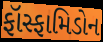
ફૉસ્ફામિડોન